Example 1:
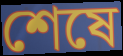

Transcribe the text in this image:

শেষে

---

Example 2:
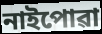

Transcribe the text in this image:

নাইপোৱা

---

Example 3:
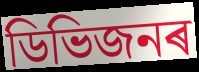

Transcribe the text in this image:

ডিভিজনৰ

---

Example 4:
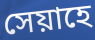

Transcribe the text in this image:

সেয়াহে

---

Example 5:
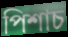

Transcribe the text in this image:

পিশাচ